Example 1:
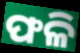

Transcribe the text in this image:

ଫଳି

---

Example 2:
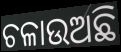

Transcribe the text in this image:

ଚଳାଉଅଛି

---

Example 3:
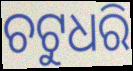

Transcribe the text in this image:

ଚଟୁଧରି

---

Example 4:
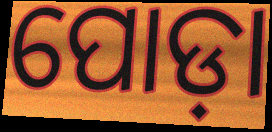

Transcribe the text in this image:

ପୋଡ଼ା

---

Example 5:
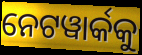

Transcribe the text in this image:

ନେଟୱାର୍କକୁ